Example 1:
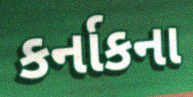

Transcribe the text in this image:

કર્નાકના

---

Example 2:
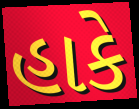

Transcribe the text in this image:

હાકે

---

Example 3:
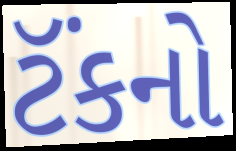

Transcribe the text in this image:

ટૅંકનો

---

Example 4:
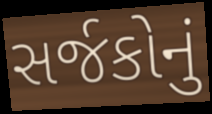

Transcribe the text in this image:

સર્જકોનું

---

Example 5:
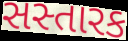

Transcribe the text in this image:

સસ્તારક